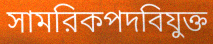
সামরিকপদবিযুক্ত